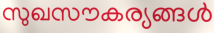
സുഖസൗകര്യങ്ങൾ